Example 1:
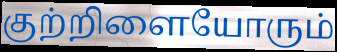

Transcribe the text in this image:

குற்றிளையோரும்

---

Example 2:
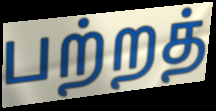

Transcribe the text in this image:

பற்றத்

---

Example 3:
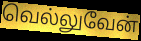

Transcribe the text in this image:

வெல்லுவேன்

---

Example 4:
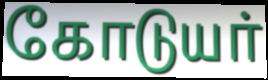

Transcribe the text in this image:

கோடுயர்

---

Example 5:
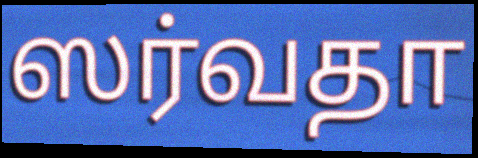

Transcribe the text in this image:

ஸர்வதா